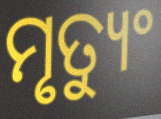
ମୃତ୍ୟୁଂ